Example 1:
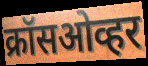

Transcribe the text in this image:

क्रॉसओव्हर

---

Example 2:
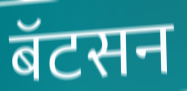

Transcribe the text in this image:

बॅटसन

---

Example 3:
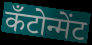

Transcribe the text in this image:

कँटोन्मेंट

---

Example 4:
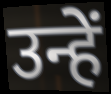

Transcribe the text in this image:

उन्हें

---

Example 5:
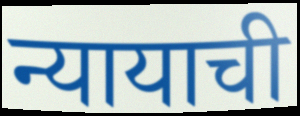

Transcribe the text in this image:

न्यायाची